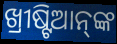
ଖ୍ରୀଷ୍ଟିଆନ୍‌ଙ୍କ